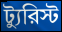
ট্যুরিস্ট